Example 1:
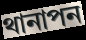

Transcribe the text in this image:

থানাপন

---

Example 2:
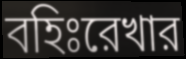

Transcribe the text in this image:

বহিঃরেখার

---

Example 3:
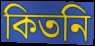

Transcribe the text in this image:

কিতনি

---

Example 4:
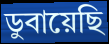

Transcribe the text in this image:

ডুবায়েছি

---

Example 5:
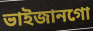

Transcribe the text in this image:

ভাইজানগো